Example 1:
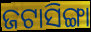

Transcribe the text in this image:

ଜଟାସିଙ୍ଗା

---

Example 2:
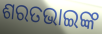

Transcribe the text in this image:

ଶରତଭାଇଙ୍କ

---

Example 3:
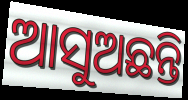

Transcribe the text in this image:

ଆସୁଅଛନ୍ତି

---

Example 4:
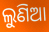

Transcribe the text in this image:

ଲୁଣିଆ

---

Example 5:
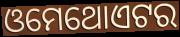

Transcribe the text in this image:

ଓମେଥୋଏଟର